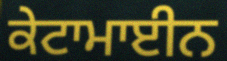
ਕੇਟਾਮਾਈਨ